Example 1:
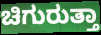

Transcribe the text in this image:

ಚಿಗುರುತ್ತಾ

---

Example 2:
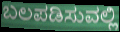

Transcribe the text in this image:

ಬಲಪಡಿಸುವಲ್ಲಿ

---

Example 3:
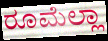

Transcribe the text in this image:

ರೂಮೆಲ್ಲಾ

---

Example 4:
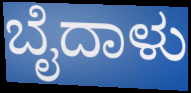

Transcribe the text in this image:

ಬೈದಾಳು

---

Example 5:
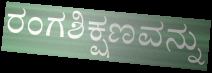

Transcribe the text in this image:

ರಂಗಶಿಕ್ಷಣವನ್ನು